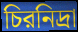
চিরনিদ্রা